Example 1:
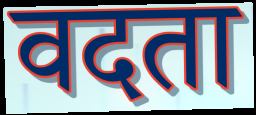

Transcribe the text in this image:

वदता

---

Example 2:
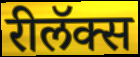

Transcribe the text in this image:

रीलॅक्स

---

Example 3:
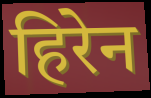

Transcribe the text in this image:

हिरेन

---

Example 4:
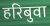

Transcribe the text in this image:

हरिबुवा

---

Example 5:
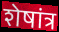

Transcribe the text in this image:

शेषांत्र